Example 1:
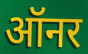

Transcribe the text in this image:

ऑनर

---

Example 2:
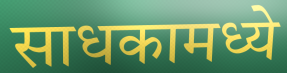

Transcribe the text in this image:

साधकामध्ये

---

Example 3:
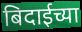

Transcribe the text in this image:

बिदाईच्या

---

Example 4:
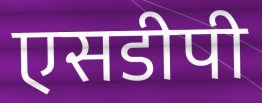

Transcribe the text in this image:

एसडीपी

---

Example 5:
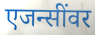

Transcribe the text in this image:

एजन्सींवर